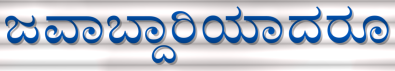
ಜವಾಬ್ದಾರಿಯಾದರೂ